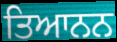
ਤਿਆਨਨ